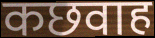
कछवाह